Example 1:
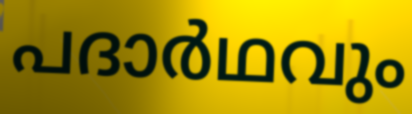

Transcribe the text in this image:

പദാർഥവും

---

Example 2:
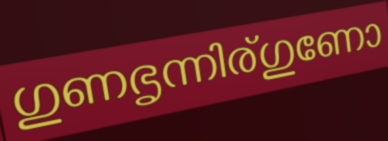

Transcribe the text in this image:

ഗുണഭൃന്നിര്ഗുണോ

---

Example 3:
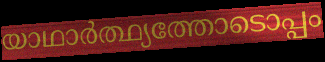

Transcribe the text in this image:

യാഥാർത്ഥ്യത്തോടൊപ്പം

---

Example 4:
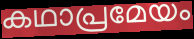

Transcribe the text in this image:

കഥാപ്രമേയം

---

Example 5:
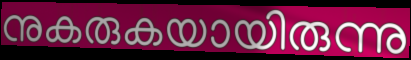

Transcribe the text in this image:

നുകരുകയായിരുന്നു